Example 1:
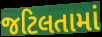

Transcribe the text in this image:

જટિલતામાં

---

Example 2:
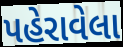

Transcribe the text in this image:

પહેરાવેલા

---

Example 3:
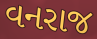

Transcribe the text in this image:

વનરાજ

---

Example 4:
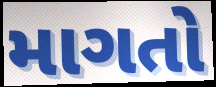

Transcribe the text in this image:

માગતો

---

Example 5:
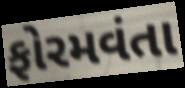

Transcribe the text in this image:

ફોરમવંતા